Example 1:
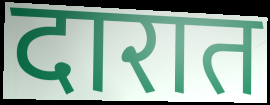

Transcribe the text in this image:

दारात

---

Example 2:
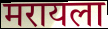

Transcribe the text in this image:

मरायला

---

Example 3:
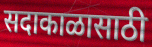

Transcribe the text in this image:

सदाकाळासाठी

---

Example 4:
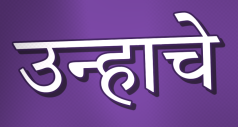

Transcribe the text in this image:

उन्हाचे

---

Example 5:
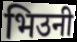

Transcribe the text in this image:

भिउनी